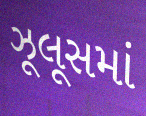
ઝૂલૂસમાં